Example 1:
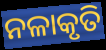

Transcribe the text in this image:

ନଳାକୃତି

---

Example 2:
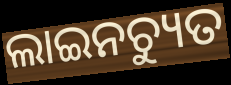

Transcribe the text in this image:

ଲାଇନଚ୍ୟୁତ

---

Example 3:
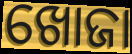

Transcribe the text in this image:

ଖୋଜା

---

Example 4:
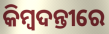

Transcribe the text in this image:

କିମ୍ବଦନ୍ତୀରେ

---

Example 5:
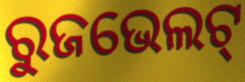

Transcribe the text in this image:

ରୁଜଭେଲଟ୍